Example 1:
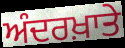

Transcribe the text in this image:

ਅੰਦਰਖ਼ਾਤੇ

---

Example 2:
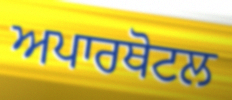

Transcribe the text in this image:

ਅਪਾਰਥੋਟਲ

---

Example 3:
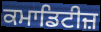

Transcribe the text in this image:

ਕਮਾਡਿਟੀਜ਼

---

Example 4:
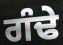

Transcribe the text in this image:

ਗੰਢੇ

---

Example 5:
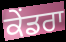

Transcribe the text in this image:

ਕੇਂਡਰਾ